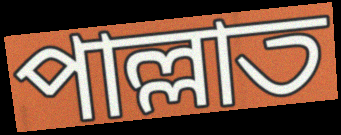
পাল্লাত